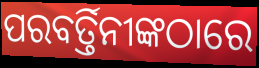
ପରବର୍ତ୍ତିନୀଙ୍କଠାରେ